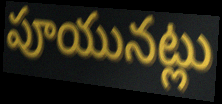
పూయునట్లు